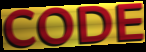
CODE